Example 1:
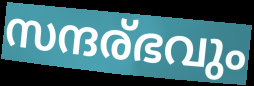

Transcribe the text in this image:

സന്ദര്ഭവും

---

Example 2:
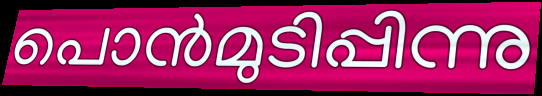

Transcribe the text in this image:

പൊൻമുടിപ്പിന്നു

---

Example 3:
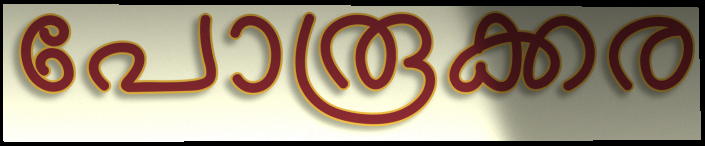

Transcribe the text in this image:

പോരൂക്കര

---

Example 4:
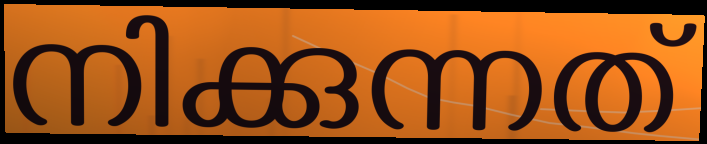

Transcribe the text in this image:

നിക്കുന്നത്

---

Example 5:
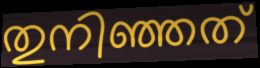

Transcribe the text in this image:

തുനിഞ്ഞത്